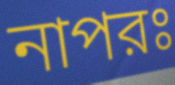
নাপরঃ